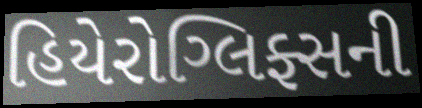
હિયેરોગ્લિફ્સની